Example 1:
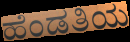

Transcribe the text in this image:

ಹೆಂಡತಿಯ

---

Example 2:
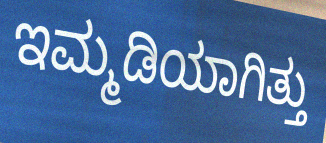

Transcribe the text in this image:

ಇಮ್ಮಡಿಯಾಗಿತ್ತು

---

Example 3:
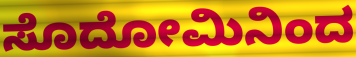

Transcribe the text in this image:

ಸೊದೋಮಿನಿಂದ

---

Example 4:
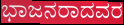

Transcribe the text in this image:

ಭಾಜನರಾದವರ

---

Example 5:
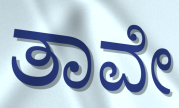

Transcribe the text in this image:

ತಾವೇ